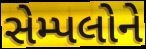
સેમ્પલોને